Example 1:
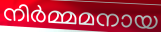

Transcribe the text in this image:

നിർമ്മമനായ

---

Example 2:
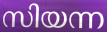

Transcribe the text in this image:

സിയന്ന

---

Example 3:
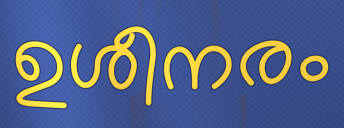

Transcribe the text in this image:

ഉശീനരം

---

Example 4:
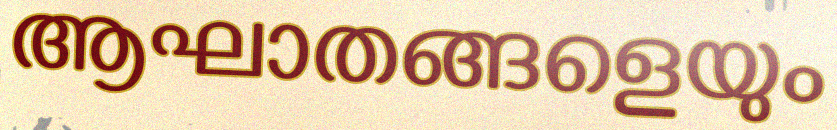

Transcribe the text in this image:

ആഘാതങ്ങളെയും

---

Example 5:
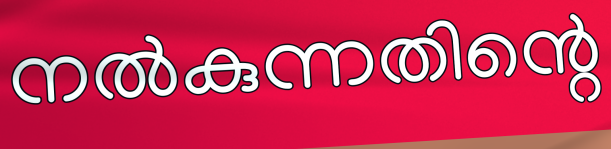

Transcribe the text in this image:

നൽകുന്നതിന്റെ